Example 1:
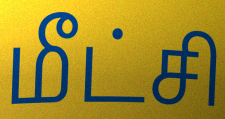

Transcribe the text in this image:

மீட்சி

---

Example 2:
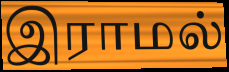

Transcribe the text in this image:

இராமல்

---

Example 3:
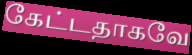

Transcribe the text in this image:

கேட்டதாகவே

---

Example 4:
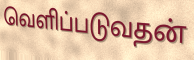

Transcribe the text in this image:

வெளிப்படுவதன்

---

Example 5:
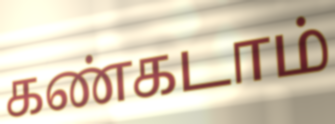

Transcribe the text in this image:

கண்கடாம்